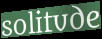
solitude